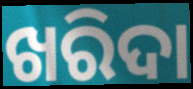
ଖରିଦା